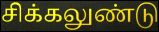
சிக்கலுண்டு